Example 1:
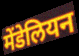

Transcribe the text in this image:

मेंडेलियन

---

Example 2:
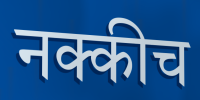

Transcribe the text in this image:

नक्कीच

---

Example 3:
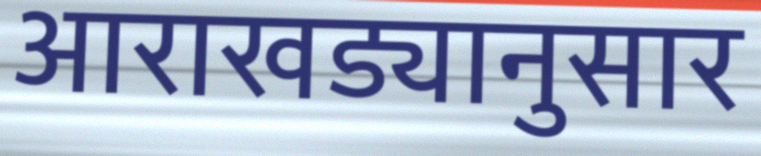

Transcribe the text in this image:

आराखड्यानुसार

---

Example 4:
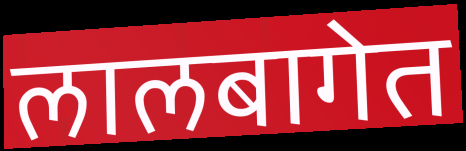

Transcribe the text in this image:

लालबागेत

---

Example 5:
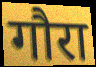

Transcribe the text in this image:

गौरा